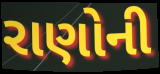
રાણોની